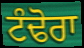
ਟੰਢੋਰਾ